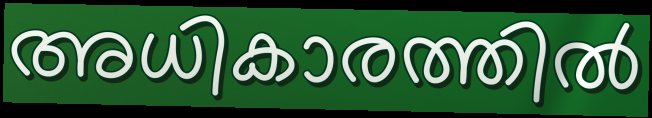
അധികാരത്തിൽ